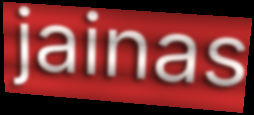
jainas